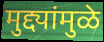
मुद्द्यांमुळे